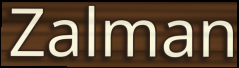
Zalman